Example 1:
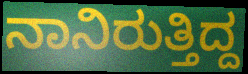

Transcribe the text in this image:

ನಾನಿರುತ್ತಿದ್ದ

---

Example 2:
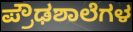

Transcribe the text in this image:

ಪ್ರೌಢಶಾಲೆಗಳ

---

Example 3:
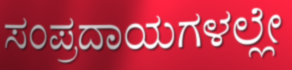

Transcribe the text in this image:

ಸಂಪ್ರದಾಯಗಳಲ್ಲೇ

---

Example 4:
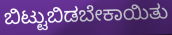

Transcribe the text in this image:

ಬಿಟ್ಟುಬಿಡಬೇಕಾಯಿತು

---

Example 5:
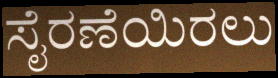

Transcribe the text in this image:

ಸೈರಣೆಯಿರಲು